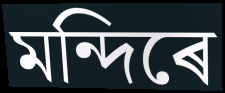
মন্দিৰে